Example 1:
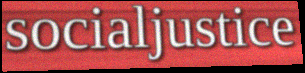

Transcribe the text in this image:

socialjustice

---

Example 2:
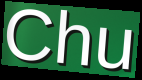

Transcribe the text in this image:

Chu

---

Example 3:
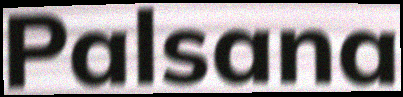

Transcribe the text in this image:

Palsana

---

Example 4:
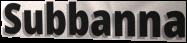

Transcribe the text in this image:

Subbanna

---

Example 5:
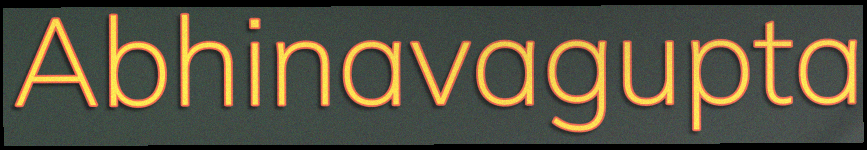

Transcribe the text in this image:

Abhinavagupta